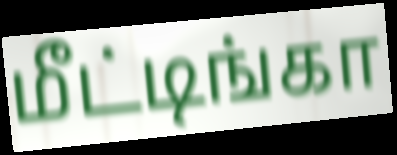
மீட்டிங்கா